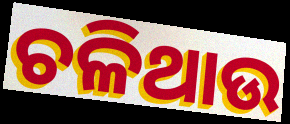
ଚଳିଥାଉ